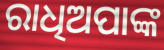
ରାଧିଅପାଙ୍କ